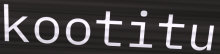
kootitu